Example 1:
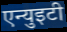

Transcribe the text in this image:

एन्युइटी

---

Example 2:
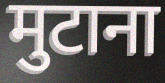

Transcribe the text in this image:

मुटाना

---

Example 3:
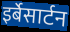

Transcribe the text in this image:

इर्बेसार्टन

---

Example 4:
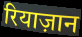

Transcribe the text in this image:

रियाज़ान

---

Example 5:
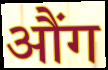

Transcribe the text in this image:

औंग